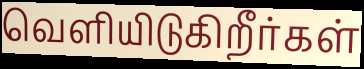
வெளியிடுகிறீர்கள்